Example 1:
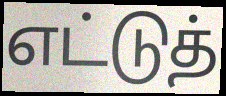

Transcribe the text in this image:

எட்டுத்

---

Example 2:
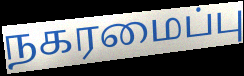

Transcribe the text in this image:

நகரமைப்பு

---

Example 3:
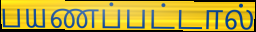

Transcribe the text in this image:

பயணப்பட்டால்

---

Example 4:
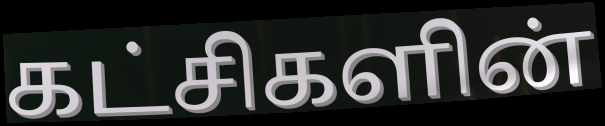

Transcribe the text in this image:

கட்சிகளின்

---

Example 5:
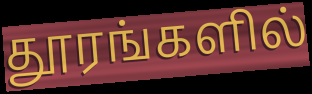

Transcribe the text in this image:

தூரங்களில்